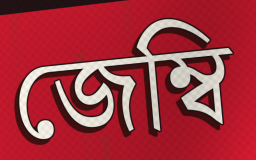
জেম্বি